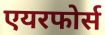
एयरफोर्स